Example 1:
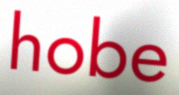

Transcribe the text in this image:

hobe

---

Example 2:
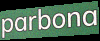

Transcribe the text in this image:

parbona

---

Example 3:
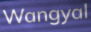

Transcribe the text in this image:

Wangyal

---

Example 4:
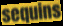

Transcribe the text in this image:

sequins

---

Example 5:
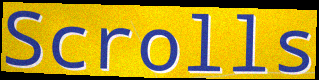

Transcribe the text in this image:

Scrolls